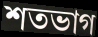
শতভাগ